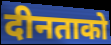
दीनताको